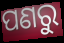
ପଣରୁ